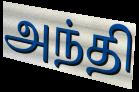
அந்தி